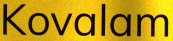
Kovalam